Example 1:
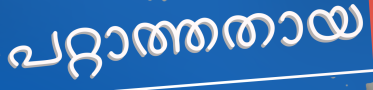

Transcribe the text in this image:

പറ്റാത്തതായ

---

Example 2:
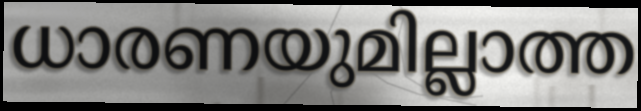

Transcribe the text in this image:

ധാരണയുമില്ലാത്ത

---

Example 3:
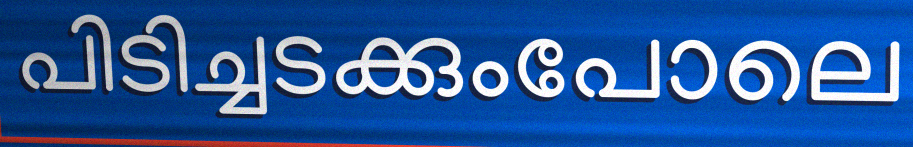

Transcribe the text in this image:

പിടിച്ചടക്കുംപോലെ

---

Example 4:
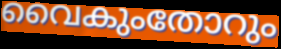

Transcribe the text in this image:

വൈകുംതോറും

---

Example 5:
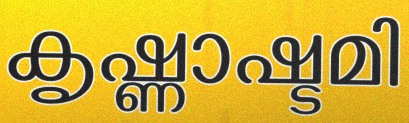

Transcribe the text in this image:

കൃഷ്ണാഷ്ടമി